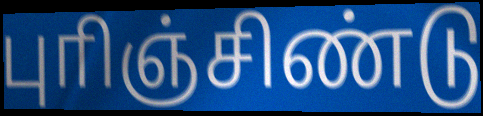
புரிஞ்சிண்டு